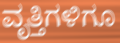
ವೃತ್ತಿಗಳಿಗೂ